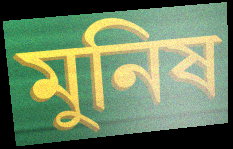
মুনিষ